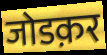
जोडक़र